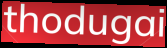
thodugai